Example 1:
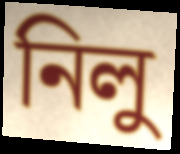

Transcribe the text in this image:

নিলু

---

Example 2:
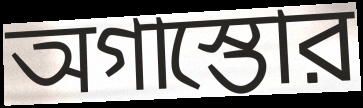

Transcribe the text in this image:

অগাস্তোর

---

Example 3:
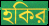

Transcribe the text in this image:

হকির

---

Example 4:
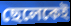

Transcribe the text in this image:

ছেলেকেই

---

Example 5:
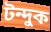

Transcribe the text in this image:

টন্দুক